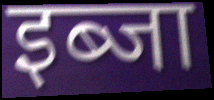
इब्जा